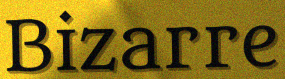
Bizarre